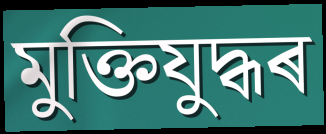
মুক্তিযুদ্ধৰ